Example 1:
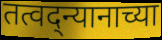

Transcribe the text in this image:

तत्वद्न्यानाच्या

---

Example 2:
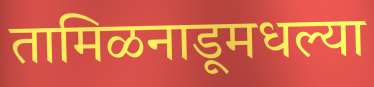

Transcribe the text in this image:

तामिळनाडूमधल्या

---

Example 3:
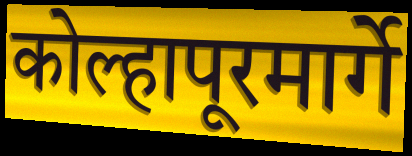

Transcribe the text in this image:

कोल्हापूरमार्गे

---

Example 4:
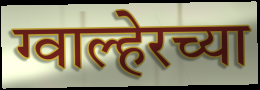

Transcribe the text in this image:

ग्वाल्हेरच्या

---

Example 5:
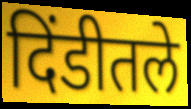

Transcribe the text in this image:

दिंडीतले